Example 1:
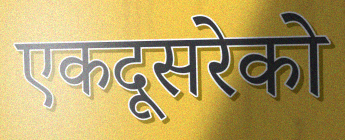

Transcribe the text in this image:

एकदूसरेको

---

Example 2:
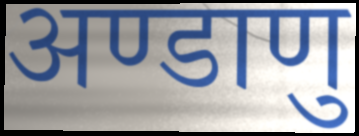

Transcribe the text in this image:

अण्डाणु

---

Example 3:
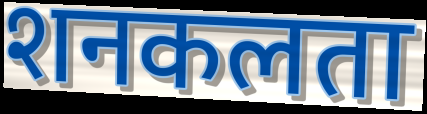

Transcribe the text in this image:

शनकलता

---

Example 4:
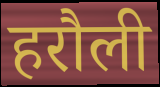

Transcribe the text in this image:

हरौली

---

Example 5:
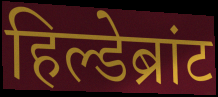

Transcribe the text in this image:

हिल्डेब्रांट